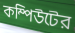
কম্পিউটের